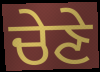
ਚੇਣੇ